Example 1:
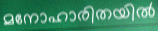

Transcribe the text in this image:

മനോഹാരിതയിൽ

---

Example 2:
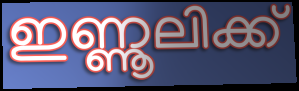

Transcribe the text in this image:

ഇണ്ണൂലിക്ക്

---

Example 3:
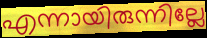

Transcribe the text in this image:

എന്നായിരുന്നില്ലേ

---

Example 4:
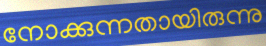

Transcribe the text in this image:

നോക്കുന്നതായിരുന്നു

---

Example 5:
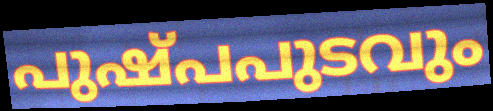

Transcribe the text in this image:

പുഷ്പപുടവും